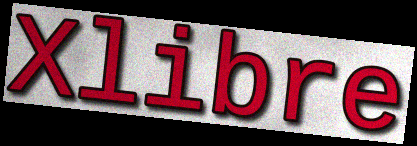
Xlibre